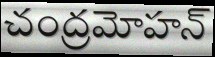
చంద్రమోహన్